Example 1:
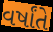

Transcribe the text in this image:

વર્ષાંતે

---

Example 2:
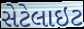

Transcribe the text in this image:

સેટેલાઇટ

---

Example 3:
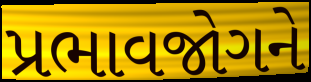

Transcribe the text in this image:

પ્રભાવજોગને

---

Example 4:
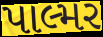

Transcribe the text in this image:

પાલ્મર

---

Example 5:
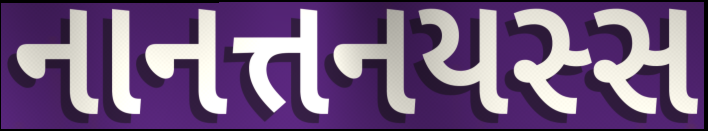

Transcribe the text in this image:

નાનત્તનયસ્સ